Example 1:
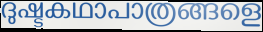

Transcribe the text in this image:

ദുഷ്ടകഥാപാത്രങ്ങളെ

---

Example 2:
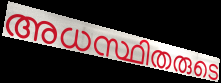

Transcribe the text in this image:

അധസ്ഥിതരുടെ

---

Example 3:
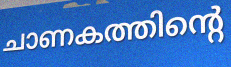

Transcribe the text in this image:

ചാണകത്തിന്റെ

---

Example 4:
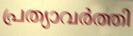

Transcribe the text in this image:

പ്രത്യാവർത്തി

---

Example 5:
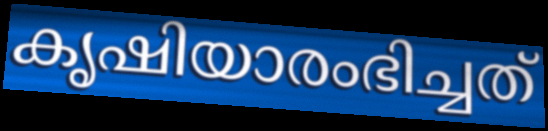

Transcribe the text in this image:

കൃഷിയാരംഭിച്ചത്